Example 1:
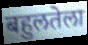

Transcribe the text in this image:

बहुलतेला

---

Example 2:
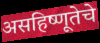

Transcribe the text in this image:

असहिष्णूतेचे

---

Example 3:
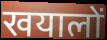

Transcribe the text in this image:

खयालों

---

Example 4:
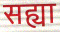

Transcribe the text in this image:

सह्या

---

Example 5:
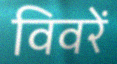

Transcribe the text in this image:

विवरें